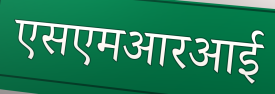
एसएमआरआई